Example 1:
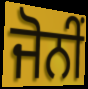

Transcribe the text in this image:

ਜੋਨੀਂ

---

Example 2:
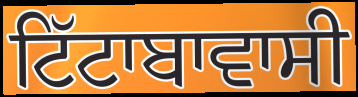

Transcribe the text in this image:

ਟਿੱਟਾਬਾਵਾਸੀ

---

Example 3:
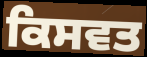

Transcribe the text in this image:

ਕਿਸਵਤ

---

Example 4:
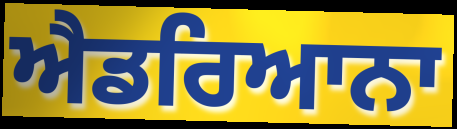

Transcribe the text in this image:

ਐਡਰਿਆਨਾ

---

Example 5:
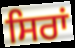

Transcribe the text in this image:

ਸਿਰਾਂ